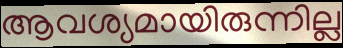
ആവശ്യമായിരുന്നില്ല